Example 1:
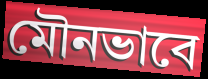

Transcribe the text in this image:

মৌনভাবে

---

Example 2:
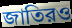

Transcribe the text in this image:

জাতিরও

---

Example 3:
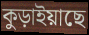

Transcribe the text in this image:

কুড়াইয়াছে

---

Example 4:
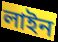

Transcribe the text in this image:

লাইন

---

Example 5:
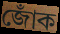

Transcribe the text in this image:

জোঁক